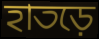
হাতড়ে